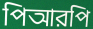
পিআরপি